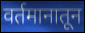
वर्तमानातून